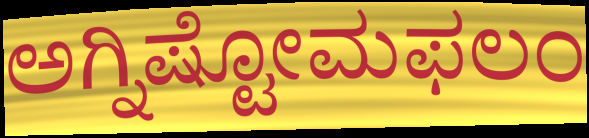
ಅಗ್ನಿಷ್ಟೋಮಫಲಂ